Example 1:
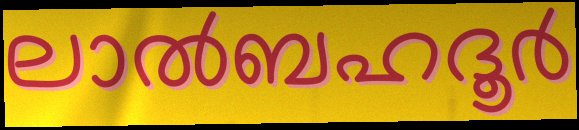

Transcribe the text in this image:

ലാൽബഹദൂർ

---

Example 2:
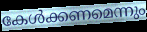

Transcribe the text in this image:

കേൾക്കണമെന്നും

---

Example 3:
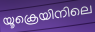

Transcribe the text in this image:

യൂക്രെയിനിലെ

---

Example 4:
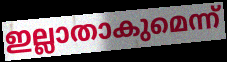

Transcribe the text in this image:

ഇല്ലാതാകുമെന്ന്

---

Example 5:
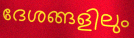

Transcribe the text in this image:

ദേശങ്ങളിലും